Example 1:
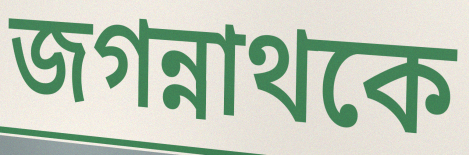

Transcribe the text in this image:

জগন্নাথকে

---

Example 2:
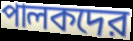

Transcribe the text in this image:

পালকদের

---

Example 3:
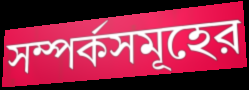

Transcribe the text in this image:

সম্পর্কসমূহের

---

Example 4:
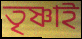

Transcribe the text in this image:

তৃষ্ণাই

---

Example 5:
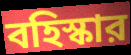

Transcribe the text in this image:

বহিস্কার